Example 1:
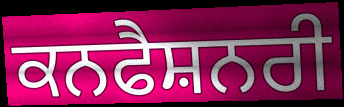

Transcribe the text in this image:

ਕਨਫੈਸ਼ਨਰੀ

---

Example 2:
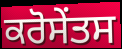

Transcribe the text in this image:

ਕਰੋਸੇਂਤਸ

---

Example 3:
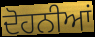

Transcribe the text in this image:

ਦੋਹਨੀਆਂ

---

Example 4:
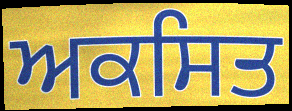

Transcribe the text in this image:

ਅਕਸਿਤ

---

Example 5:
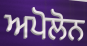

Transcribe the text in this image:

ਅਪੋਲੋਨ